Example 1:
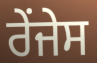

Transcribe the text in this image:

ਰੇਂਜੇਸ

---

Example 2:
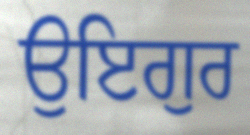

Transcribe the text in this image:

ਉਇਗੁਰ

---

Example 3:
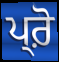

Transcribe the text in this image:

ਪ੍ਰ਼ੋ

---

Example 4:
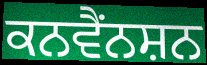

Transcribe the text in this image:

ਕਨਵੈਂਨਸ਼ਨ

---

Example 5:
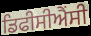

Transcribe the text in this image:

ਡਿਫੀਸੀਐਂਸੀ